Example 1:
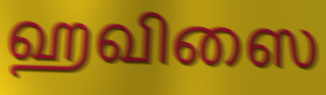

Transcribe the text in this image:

ஹவிஸை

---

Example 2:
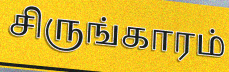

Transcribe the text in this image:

சிருங்காரம்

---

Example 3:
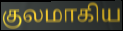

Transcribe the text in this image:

குலமாகிய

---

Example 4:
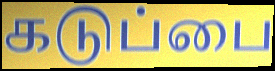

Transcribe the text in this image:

கடுப்பை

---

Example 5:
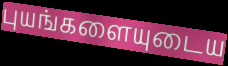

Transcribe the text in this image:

புயங்களையுடைய